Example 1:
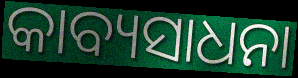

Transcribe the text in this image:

କାବ୍ୟସାଧନା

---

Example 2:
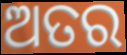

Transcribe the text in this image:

ଅତର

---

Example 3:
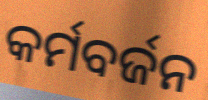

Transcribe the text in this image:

କର୍ମବର୍ଜନ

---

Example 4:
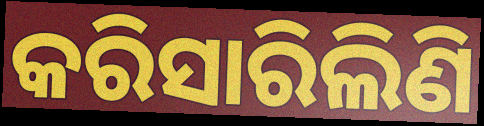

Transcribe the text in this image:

କରିସାରିଲିଣି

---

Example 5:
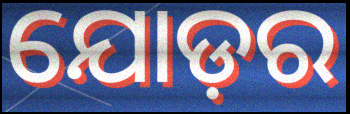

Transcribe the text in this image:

ଯୋଡ଼ର